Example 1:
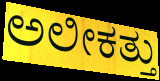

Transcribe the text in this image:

ಅಲೀಕತ್ತು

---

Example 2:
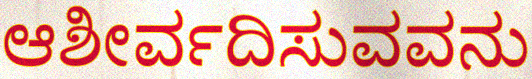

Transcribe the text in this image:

ಆಶೀರ್ವದಿಸುವವನು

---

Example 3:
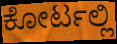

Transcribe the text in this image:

ಕೋರ್ಟಲ್ಲಿ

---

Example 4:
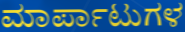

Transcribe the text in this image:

ಮಾರ್ಪಾಟುಗಳ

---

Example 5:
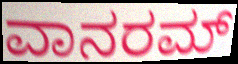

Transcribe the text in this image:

ವಾನರಮ್